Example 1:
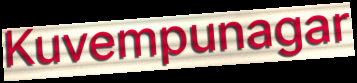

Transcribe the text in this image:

Kuvempunagar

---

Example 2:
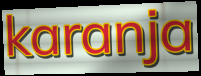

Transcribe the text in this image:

karanja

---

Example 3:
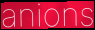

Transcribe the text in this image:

anions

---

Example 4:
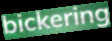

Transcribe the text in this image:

bickering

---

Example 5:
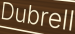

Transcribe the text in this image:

Dubrell